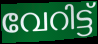
വേറിട്ട്